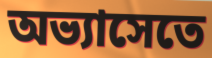
অভ্যাসেতে